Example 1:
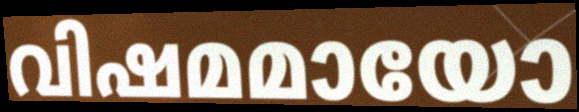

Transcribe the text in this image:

വിഷമമായോ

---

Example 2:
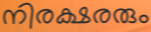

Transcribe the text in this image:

നിരക്ഷരരും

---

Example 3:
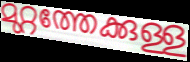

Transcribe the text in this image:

മുറ്റത്തേക്കുള്ള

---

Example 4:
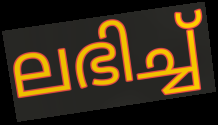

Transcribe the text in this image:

ലഭിച്ച്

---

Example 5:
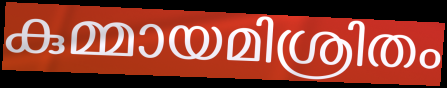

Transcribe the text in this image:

കുമ്മായമിശ്രിതം